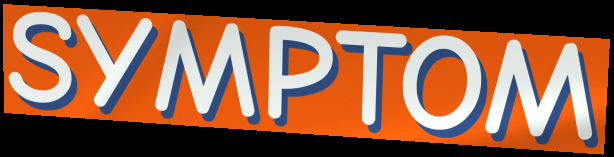
SYMPTOM